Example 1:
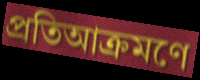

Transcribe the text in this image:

প্রতিআক্রমণে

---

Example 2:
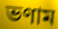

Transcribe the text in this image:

ভণাম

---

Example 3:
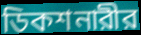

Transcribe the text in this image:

ডিকশনারীর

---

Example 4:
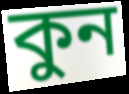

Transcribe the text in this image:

কুন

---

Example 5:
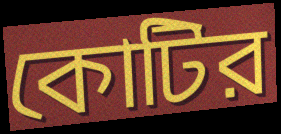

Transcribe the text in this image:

কোটির